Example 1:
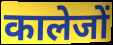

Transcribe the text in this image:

कालेजों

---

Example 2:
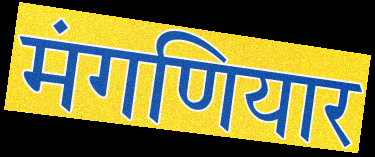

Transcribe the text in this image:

मंगणियार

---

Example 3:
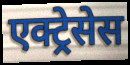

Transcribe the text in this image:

एक्ट्रेसेस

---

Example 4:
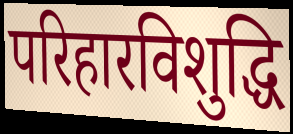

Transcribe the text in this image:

परिहारविशुद्धि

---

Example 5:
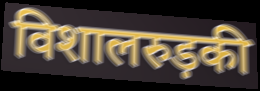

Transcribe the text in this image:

विशालरुड़की